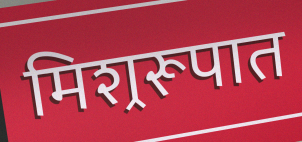
मिश्ररूपात